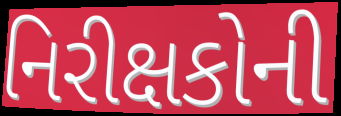
નિરીક્ષકોની